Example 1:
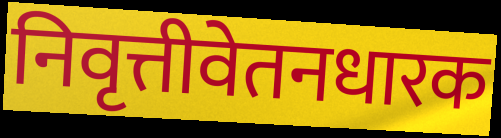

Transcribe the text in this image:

निवृत्तीवेतनधारक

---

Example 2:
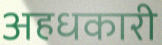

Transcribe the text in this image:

अहधकारी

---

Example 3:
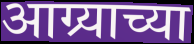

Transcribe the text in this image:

आग्र्याच्या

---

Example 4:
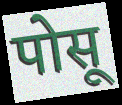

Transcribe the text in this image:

पोसू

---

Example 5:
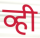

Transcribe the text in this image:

व्ही